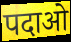
पदाओ